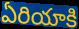
ఏరియాకి